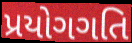
પ્રયોગગતિ